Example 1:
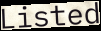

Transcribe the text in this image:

Listed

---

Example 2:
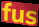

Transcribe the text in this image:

fus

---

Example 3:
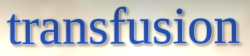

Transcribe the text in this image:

transfusion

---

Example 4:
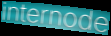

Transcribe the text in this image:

internode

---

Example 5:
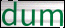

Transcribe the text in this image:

dum